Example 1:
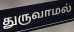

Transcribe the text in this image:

துருவாமல்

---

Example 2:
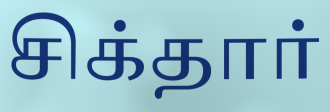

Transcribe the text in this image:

சிக்தார்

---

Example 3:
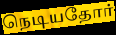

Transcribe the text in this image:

நெடியதோர்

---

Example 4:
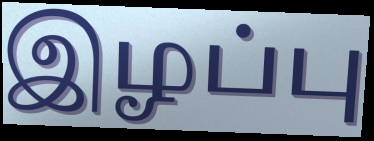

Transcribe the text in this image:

இழப்பு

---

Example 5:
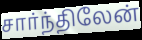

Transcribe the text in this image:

சார்ந்திலேன்